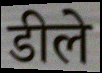
डीले